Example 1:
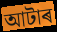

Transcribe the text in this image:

আটাৰ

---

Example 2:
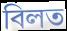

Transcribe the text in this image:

বিলত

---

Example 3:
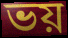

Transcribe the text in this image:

ভয়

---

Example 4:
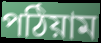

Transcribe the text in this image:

পঠিয়াম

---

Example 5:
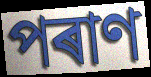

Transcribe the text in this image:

পৰাণ